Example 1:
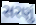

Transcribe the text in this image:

સરણું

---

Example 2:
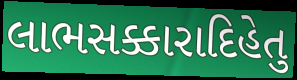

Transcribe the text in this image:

લાભસક્કારાદિહેતુ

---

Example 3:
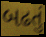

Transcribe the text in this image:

બઢતું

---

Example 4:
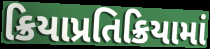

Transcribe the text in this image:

ક્રિયાપ્રતિક્રિયામાં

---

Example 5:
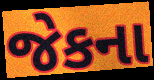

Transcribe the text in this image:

જેકના